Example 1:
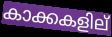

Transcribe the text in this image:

കാക്കകളില്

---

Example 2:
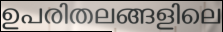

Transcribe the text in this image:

ഉപരിതലങ്ങളിലെ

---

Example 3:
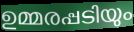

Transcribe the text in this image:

ഉമ്മരപ്പടിയും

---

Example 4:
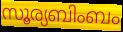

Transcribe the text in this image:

സൂര്യബിംബം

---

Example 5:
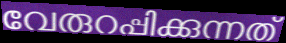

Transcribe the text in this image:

വേരുറപ്പിക്കുന്നത്